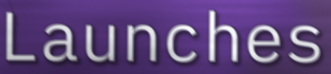
Launches